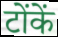
टोंकें